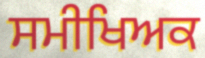
ਸਮੀਖਿਅਕ